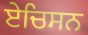
ਏਚਿਸਨ